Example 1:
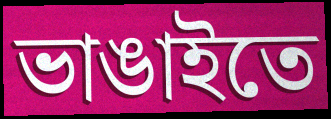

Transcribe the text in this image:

ভাঙাইতে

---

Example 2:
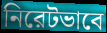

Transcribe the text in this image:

নিরেটভাবে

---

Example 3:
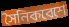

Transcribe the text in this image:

সৈনিকবেশে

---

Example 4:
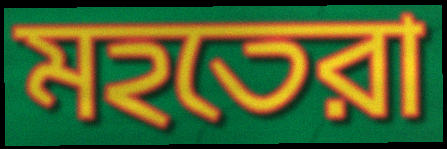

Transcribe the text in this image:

মহতেরা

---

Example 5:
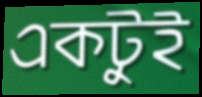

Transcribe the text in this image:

একটুই